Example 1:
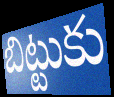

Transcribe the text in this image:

బిట్టుకు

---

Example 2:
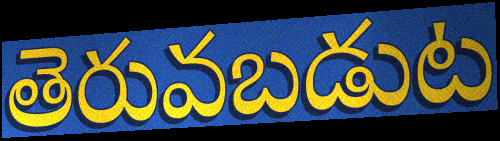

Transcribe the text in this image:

తెరువబడుట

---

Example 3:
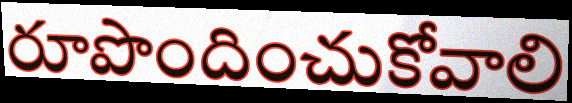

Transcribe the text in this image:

రూపొందించుకోవాలి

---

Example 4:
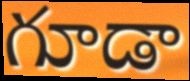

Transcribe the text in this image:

గూడా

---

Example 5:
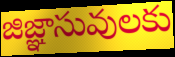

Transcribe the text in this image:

జిజ్ఞాసువులకు